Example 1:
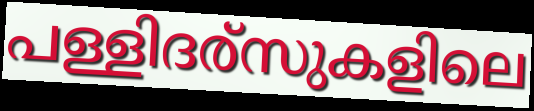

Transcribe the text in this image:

പള്ളിദര്സുകളിലെ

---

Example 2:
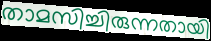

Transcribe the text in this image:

താമസിച്ചിരുന്നതായി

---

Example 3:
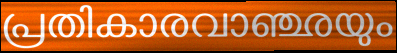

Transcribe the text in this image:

പ്രതികാരവാഞ്ഛയും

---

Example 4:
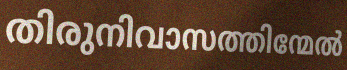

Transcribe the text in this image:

തിരുനിവാസത്തിന്മേൽ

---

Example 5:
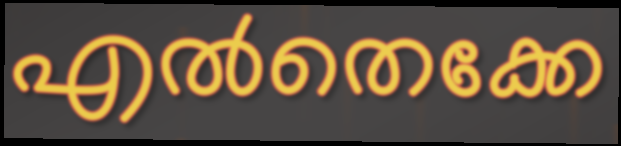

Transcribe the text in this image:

എൽതെക്കേ